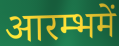
आरम्भमें